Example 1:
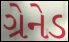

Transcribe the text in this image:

ગ્રેનેડ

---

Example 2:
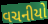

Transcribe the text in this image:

વચનીયો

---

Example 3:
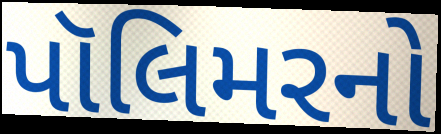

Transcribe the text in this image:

પૉલિમરનો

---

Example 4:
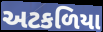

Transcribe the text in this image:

અટકળિયા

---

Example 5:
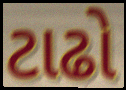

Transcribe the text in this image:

ટાઢો